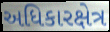
અધિકારક્ષેત્ર